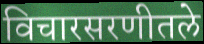
विचारसरणीतले